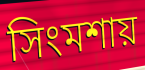
সিংমশায়